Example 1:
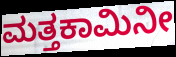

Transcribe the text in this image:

ಮತ್ತಕಾಮಿನೀ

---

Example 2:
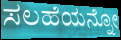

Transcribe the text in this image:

ಸಲಹೆಯನ್ನೋ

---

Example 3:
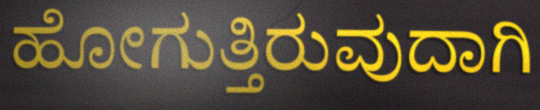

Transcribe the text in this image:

ಹೋಗುತ್ತಿರುವುದಾಗಿ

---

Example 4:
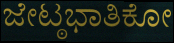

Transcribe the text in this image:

ಜೇಟ್ಠಭಾತಿಕೋ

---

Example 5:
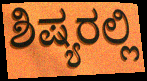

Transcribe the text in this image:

ಶಿಷ್ಯರಲ್ಲಿ